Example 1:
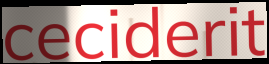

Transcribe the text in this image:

ceciderit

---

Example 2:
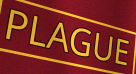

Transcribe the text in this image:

PLAGUE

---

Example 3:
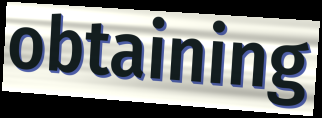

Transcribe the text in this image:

obtaining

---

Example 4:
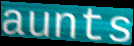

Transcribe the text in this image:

aunts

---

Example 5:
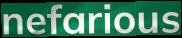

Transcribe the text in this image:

nefarious